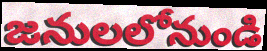
జనులలోనుండి